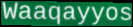
Waaqayyos